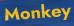
Monkey